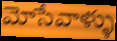
మోసేవాళ్ళు